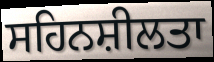
ਸਹਿਨਸ਼ੀਲਤਾ